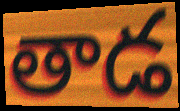
తాడ